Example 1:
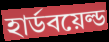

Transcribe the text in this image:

হার্ডবয়েল্ড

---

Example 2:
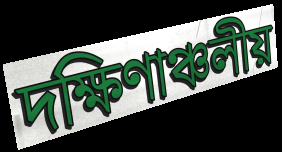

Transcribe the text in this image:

দক্ষিণাঞ্চলীয়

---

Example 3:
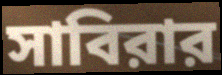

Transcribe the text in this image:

সাবিরার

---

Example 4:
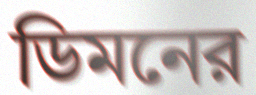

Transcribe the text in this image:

ডিমনের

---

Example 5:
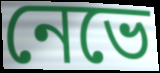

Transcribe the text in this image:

নেভে